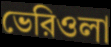
ভেরিওলা